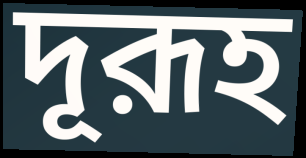
দূরূহ